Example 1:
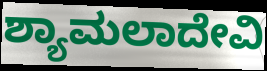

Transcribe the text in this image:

ಶ್ಯಾಮಲಾದೇವಿ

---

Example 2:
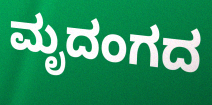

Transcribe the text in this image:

ಮೃದಂಗದ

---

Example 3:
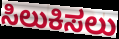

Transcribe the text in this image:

ಸಿಲುಕಿಸಲು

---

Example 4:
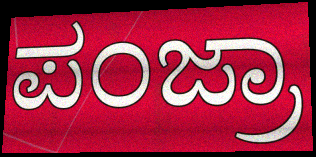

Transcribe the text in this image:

ಪಂಜ್ರಾ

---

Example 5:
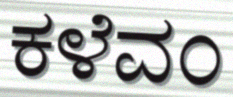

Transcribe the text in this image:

ಕಳೆವಂ